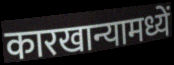
कारखान्यामध्यें